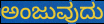
ಅಂಜುವುದು